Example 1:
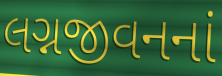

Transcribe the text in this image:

લગ્નજીવનનાં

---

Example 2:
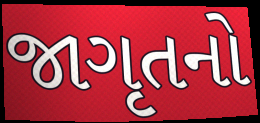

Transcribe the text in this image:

જાગૃતનો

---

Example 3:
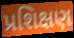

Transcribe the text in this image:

પ્રશિક્ષણ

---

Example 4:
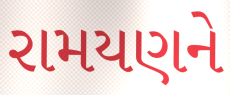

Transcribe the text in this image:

રામયણને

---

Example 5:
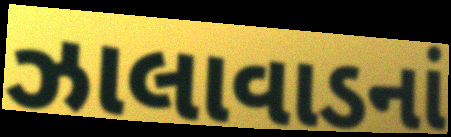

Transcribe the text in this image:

ઝાલાવાડનાં